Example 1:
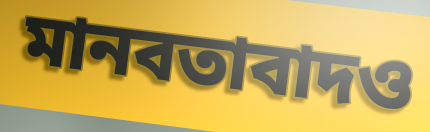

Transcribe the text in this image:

মানবতাবাদও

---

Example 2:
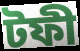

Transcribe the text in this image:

টফী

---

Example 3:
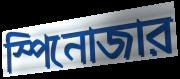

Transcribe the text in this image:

স্পিনোজার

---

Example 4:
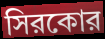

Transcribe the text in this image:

সিরকোর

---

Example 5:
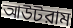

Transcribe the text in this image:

আউটরাম